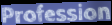
Profession